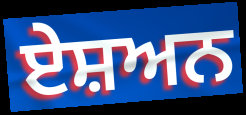
ਏਸ਼ਅਨ